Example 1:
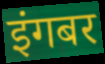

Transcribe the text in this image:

इंगबर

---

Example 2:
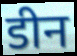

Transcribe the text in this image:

डीन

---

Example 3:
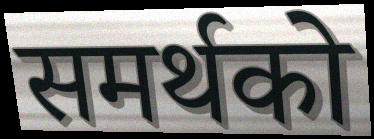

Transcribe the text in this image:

समर्थको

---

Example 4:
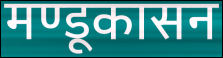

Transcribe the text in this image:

मण्डूकासन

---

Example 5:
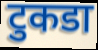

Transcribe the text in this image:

टुकडा